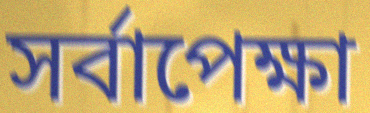
সৰ্বাপেক্ষা